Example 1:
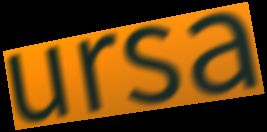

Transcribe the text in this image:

ursa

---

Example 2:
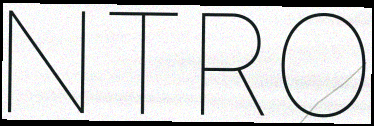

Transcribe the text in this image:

NTRO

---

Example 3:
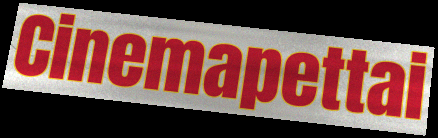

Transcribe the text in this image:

Cinemapettai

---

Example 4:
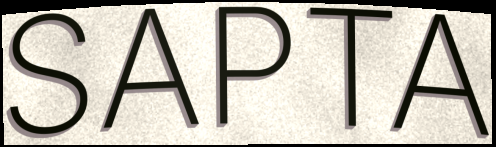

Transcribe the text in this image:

SAPTA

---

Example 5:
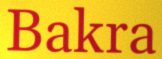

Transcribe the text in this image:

Bakra